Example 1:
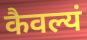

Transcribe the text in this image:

कैवल्यं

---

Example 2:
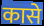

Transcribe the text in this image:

कासे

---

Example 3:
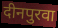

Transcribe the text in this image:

दीनपुरवा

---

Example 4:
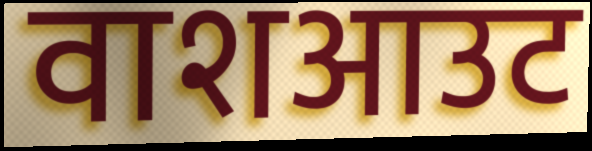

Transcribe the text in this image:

वाशआउट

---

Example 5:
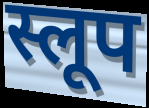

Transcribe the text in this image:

स्लूप